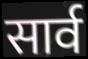
सार्व